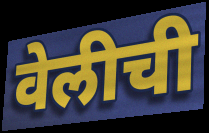
वेलीची